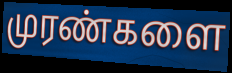
முரண்களை